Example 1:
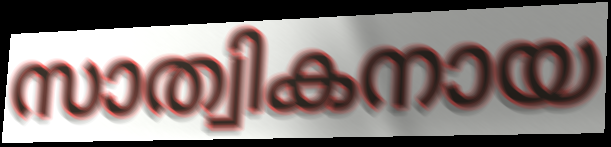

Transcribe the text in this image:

സാത്വികനായ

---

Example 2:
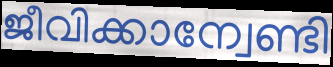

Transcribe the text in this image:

ജീവിക്കാന്വേണ്ടി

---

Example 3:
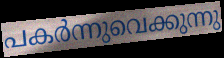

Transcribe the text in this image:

പകർന്നുവെക്കുന്നു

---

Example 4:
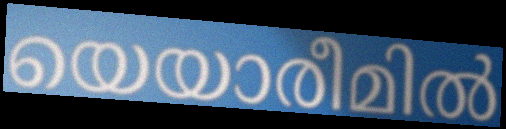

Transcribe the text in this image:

യെയാരീമിൽ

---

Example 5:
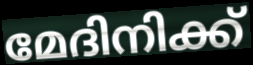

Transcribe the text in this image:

മേദിനിക്ക്